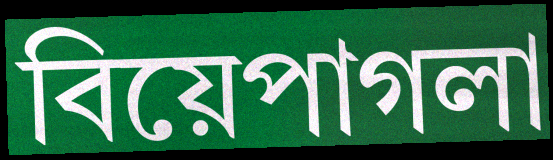
বিয়েপাগলা